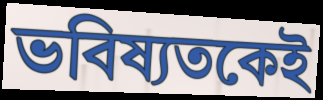
ভবিষ্যতকেই